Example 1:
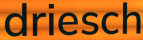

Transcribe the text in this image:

driesch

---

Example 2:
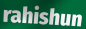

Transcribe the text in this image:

rahishun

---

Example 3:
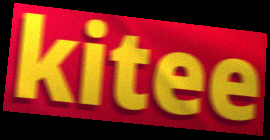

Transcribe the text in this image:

kitee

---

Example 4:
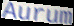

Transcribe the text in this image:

Aurum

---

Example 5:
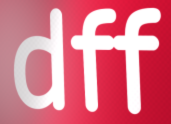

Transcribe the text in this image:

dff